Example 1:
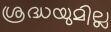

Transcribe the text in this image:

ശ്രദ്ധയുമില്ല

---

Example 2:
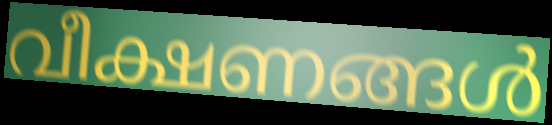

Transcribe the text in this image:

വീക്ഷണങ്ങൾ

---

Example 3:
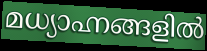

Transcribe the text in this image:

മധ്യാഹ്നങ്ങളിൽ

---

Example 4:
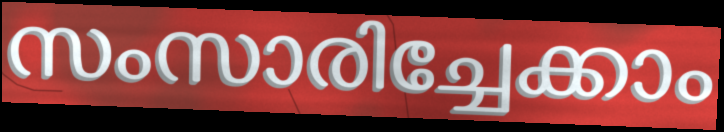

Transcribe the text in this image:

സംസാരിച്ചേക്കാം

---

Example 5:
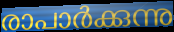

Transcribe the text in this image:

രാപാർക്കുന്നു